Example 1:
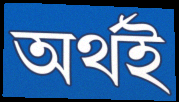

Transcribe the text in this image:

অৰ্থই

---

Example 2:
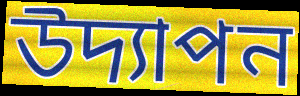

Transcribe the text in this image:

উদ্যাপন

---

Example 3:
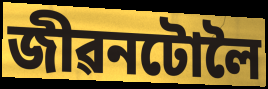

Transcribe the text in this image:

জীৱনটোলৈ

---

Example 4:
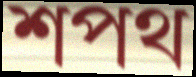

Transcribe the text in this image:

শপথ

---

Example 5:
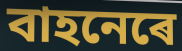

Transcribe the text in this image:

বাহনেৰে